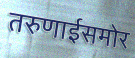
तरुणाईसमोर